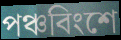
পঞ্চবিংশে